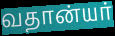
வதான்யர்